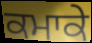
ਕਮਾਕੇ